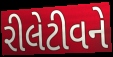
રીલેટીવને